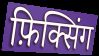
फ़िक्सिंग